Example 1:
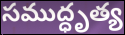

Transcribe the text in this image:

సముద్ధృత్య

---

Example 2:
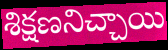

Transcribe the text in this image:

శిక్షణనిచ్చాయి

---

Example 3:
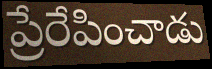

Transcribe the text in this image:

ప్రేరేపించాడు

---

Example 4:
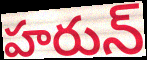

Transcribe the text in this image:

హరున్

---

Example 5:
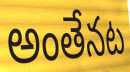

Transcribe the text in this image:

అంతేనట